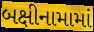
બક્ષીનામામાં